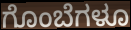
ಗೊಂಬೆಗಳೂ